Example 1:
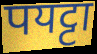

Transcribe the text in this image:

पयट्टा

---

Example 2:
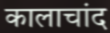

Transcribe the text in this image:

कालाचांद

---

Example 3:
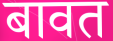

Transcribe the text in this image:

बावत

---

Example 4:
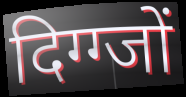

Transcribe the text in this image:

दिग्ग्जों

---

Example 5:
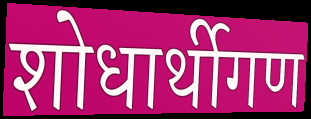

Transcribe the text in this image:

शोधार्थीगण